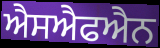
ਐਸਐਫਐਨ